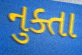
નુક્તા